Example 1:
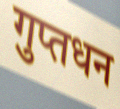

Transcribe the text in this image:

गुप्तधन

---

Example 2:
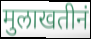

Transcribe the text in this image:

मुलाखतीनं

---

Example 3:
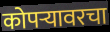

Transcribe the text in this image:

कोपऱ्यावरचा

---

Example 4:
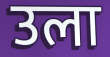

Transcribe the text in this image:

उला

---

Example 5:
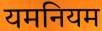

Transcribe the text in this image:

यमनियम